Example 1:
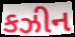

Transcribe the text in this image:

કઝીન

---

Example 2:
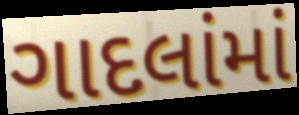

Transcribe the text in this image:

ગાદલાંમાં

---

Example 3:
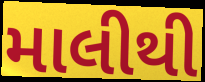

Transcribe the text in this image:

માલીથી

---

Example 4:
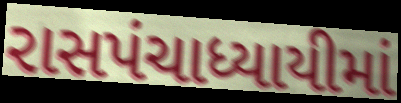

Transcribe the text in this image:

રાસપંચાધ્યાયીમાં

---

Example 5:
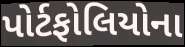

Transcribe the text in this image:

પોર્ટફોલિયોના